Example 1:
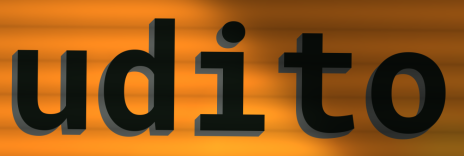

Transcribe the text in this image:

udito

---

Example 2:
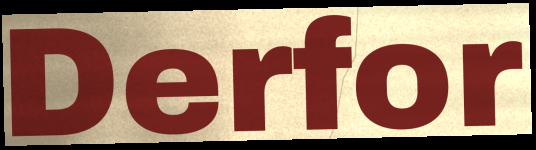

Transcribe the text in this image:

Derfor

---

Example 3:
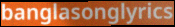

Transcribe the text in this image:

banglasonglyrics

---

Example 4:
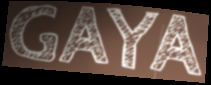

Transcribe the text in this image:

GAYA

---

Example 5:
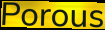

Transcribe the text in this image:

Porous